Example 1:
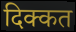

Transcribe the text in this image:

दिक्कत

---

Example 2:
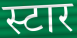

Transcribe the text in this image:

स्टार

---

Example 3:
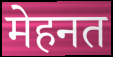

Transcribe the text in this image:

मेहनत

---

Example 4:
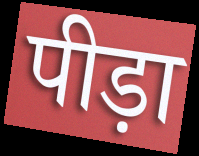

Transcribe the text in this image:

पीड़ा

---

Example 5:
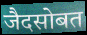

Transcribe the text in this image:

जैदसोबत